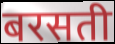
बरसती